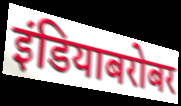
इंडियाबरोबर